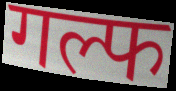
गल्फ